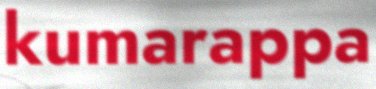
kumarappa